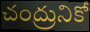
చంద్రునికో